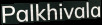
Palkhivala